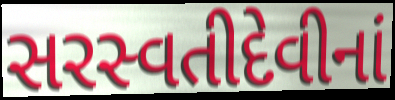
સરસ્વતીદેવીનાં